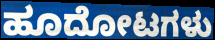
ಹೂದೋಟಗಳು